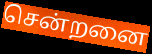
சென்றனை